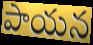
పాయన